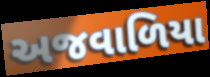
અજવાળિયા